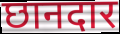
छानदार